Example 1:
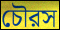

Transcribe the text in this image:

চৌরস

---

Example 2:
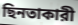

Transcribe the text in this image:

ছিনতাকারী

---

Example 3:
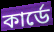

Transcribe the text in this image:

কার্ডে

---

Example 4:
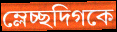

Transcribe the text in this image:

ম্লেচ্ছদিগকে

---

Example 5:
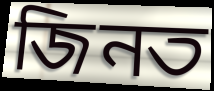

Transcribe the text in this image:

জিনত